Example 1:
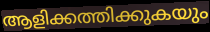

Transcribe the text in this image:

ആളിക്കത്തിക്കുകയും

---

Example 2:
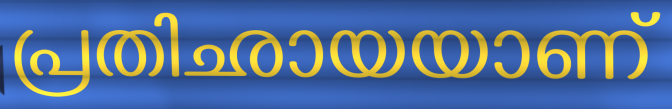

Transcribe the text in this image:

പ്രതിഛായയാണ്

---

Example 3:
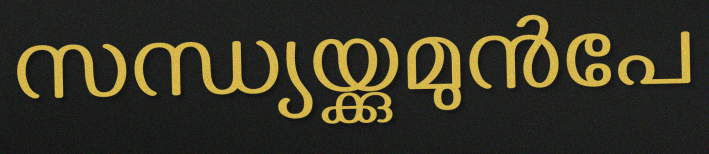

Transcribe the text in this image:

സന്ധ്യയ്ക്കുമുൻപേ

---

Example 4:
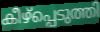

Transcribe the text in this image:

കീഴ്പ്പെടുത്തി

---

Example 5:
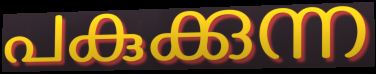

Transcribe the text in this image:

പകുക്കുന്ന